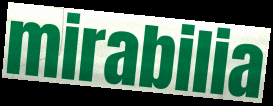
mirabilia